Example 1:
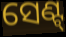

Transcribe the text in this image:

ସେଣ୍ଟ୍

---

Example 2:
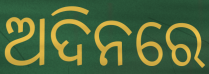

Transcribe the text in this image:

ଅଦିନରେ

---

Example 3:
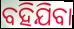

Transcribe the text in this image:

ବହିଯିବା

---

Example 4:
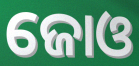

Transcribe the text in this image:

ଜୋଓ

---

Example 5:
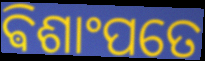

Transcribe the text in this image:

ଵିଶାଂପତେ